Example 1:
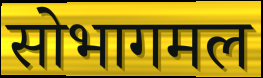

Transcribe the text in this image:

सोभागमल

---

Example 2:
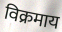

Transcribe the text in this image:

विक्रमाय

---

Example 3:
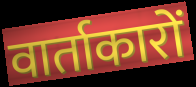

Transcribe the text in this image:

वार्ताकारों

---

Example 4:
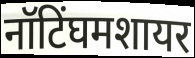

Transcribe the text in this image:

नॉटिंघमशायर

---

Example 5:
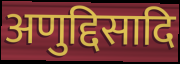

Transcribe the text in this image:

अणुद्दिसादि